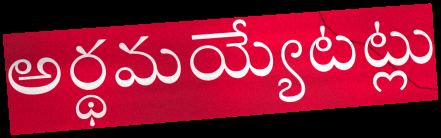
అర్థమయ్యేటట్లు